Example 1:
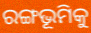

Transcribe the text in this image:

ରଙ୍ଗଭୂମିକୁ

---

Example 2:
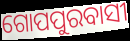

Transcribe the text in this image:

ଗୋପପୁରବାସୀ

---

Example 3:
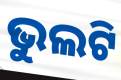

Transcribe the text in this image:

ଭୁଲଟି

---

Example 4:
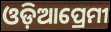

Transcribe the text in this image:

ଓଡ଼ିଆପ୍ରେମୀ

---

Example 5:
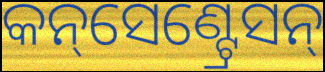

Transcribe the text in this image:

କନ୍‌ସେଣ୍ଟ୍ରେସନ୍